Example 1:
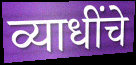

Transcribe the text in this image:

व्याधींचे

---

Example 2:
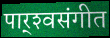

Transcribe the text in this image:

पार्श्वसंगीत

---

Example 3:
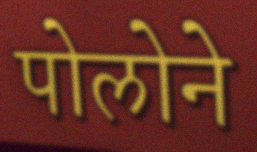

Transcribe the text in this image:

पोलोने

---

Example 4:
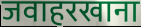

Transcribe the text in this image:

जवाहरखाना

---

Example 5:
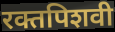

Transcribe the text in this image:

रक्तपिशवी